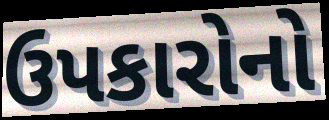
ઉપકારોનો